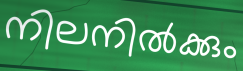
നിലനിൽക്കും